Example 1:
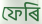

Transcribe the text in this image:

ফেৰি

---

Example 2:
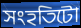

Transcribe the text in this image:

সংহতিটো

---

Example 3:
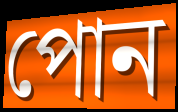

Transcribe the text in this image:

পোন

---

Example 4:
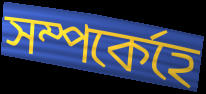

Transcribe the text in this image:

সম্পৰ্কেহে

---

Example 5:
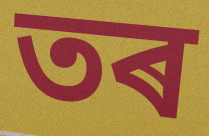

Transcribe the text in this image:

তৰ